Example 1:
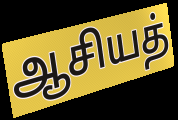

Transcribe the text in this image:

ஆசியத்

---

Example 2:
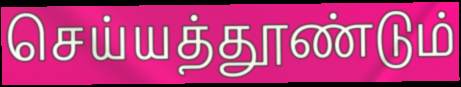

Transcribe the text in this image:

செய்யத்தூண்டும்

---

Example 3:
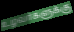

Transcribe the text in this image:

உழவர்களுக்கு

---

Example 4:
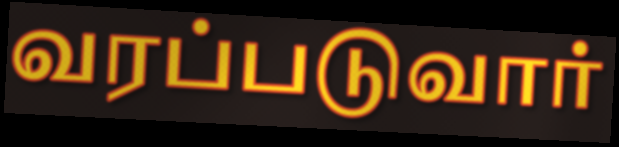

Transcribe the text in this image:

வரப்படுவார்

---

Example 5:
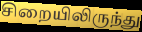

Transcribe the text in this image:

சிறையிலிருந்து